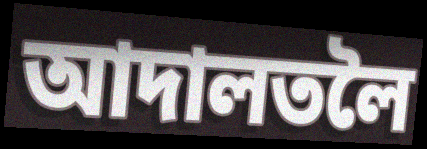
আদালতলৈ